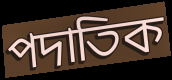
পদাতিক